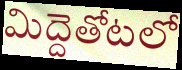
మిద్దెతోటలో